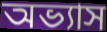
অভ্যাস